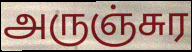
அருஞ்சுர